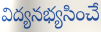
విద్యనభ్యసించే